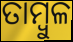
ତାମ୍ୱୁଳ